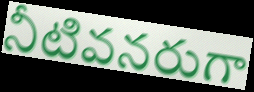
నీటివనరుగా